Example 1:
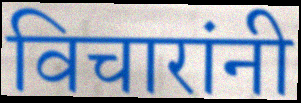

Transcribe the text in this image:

विचारांनी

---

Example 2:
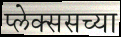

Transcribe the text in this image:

प्लेक्ससच्या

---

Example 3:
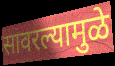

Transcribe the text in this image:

सावरल्यामुळे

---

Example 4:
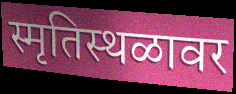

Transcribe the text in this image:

स्मृतिस्थळावर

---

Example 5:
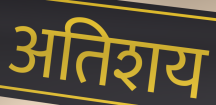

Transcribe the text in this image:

अतिशय